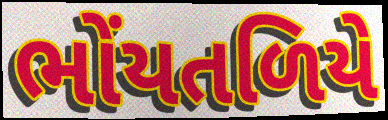
ભોંયતળિયે